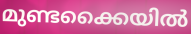
മുണ്ടക്കൈയിൽ